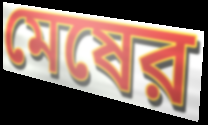
মেষের